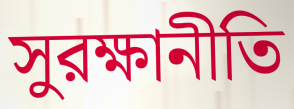
সুরক্ষানীতি